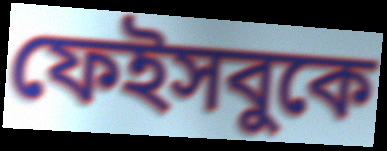
ফেইসবুকে